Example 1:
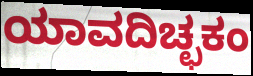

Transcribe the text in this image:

ಯಾವದಿಚ್ಛಕಂ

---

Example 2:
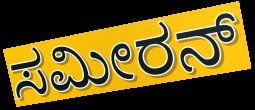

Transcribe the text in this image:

ಸಮೀರನ್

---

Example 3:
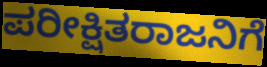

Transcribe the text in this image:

ಪರೀಕ್ಷಿತರಾಜನಿಗೆ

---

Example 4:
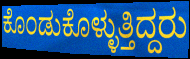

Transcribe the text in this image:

ಕೊಂಡುಕೊಳ್ಳುತ್ತಿದ್ದರು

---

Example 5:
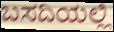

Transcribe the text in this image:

ಬಸದಿಯಲ್ಲಿ